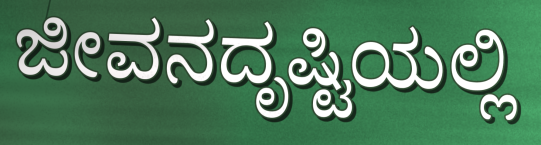
ಜೀವನದೃಷ್ಟಿಯಲ್ಲಿ